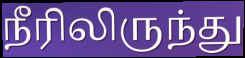
நீரிலிருந்து